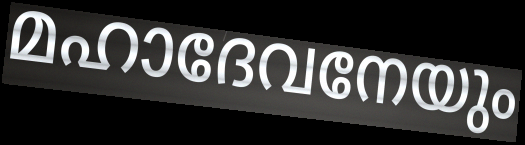
മഹാദേവനേയും